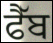
ਫੈੱਬ